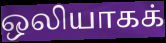
ஒலியாகக்